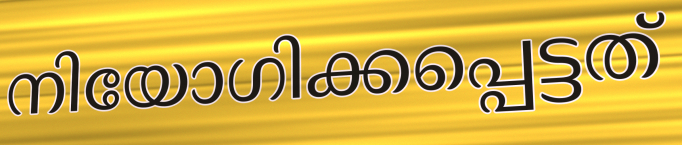
നിയോഗിക്കപ്പെട്ടത്